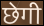
छेगी